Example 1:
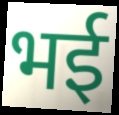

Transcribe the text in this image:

भई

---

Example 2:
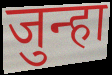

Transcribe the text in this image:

जुन्हा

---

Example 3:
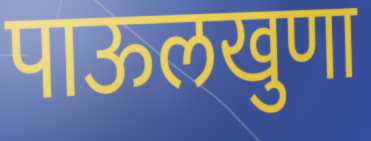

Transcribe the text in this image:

पाऊलखुणा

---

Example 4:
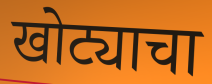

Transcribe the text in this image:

खोट्याचा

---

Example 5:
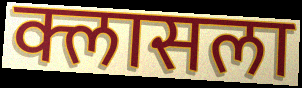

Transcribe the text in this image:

क्लासला